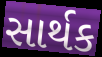
સાર્થક